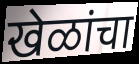
खेळांचा